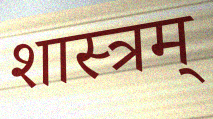
शास्त्रम्